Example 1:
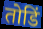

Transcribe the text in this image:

तोडिं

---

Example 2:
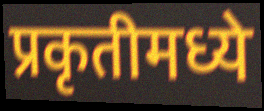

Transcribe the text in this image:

प्रकृतीमध्ये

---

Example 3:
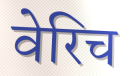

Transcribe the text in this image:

वेरिच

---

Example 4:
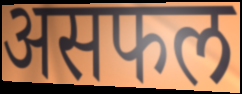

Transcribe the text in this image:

असफल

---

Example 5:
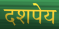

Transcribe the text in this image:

दशपेय